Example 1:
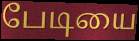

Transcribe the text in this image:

பேடியை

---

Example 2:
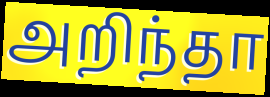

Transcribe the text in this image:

அறிந்தா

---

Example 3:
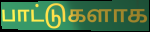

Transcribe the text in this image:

பாட்டுகளாக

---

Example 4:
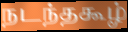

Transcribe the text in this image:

நடந்தகூழ்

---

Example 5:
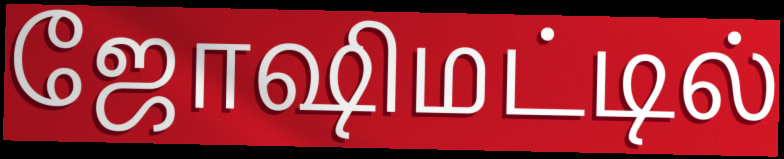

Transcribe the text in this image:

ஜோஷிமட்டில்